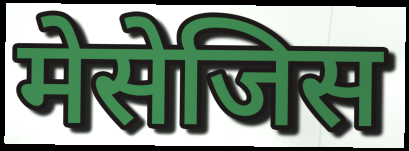
मेसेजिस